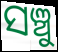
ସଞ୍ଚୁ